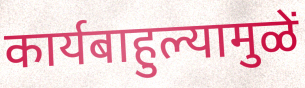
कार्यबाहुल्यामुळें